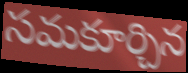
సమకూర్చిన